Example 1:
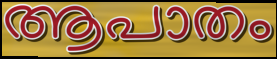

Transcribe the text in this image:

ആപാതം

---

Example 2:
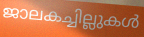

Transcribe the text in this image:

ജാലകച്ചില്ലുകൾ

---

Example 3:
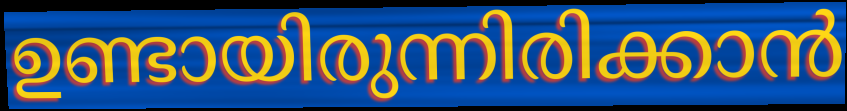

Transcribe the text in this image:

ഉണ്ടായിരുന്നിരിക്കാൻ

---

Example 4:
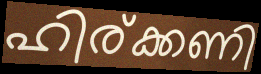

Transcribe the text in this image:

ഹിര്ക്കണി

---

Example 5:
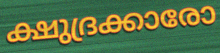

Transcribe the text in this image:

ക്ഷുദ്രക്കാരോ